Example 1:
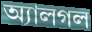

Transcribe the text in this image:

অ্যালগল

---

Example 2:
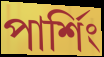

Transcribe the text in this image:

পার্শিং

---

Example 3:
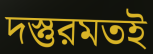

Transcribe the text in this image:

দস্তুরমতই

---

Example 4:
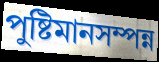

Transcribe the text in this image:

পুষ্টিমানসম্পন্ন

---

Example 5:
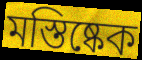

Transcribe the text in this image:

মস্তিষ্কেক